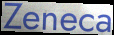
Zeneca